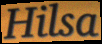
Hilsa